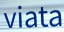
viata